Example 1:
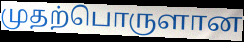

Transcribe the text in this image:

முதற்பொருளான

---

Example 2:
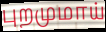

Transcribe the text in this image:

புறமுமாய்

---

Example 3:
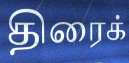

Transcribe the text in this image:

திரைக்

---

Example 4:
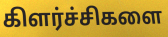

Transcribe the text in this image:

கிளர்ச்சிகளை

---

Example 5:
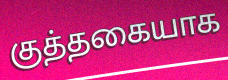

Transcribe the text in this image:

குத்தகையாக